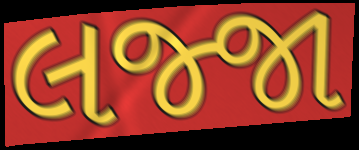
લજ્જા